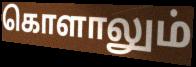
கொளாலும்